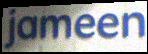
jameen